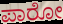
ಪಾರೋ